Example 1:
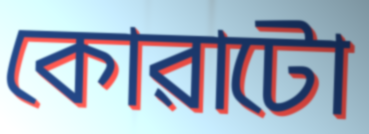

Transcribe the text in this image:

কোৱাটো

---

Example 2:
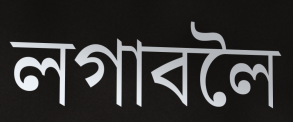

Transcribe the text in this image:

লগাবলৈ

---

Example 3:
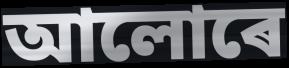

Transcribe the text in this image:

আলোৰে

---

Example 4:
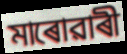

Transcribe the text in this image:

মাৰোৱাৰী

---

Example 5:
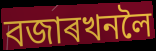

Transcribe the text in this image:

বজাৰখনলৈ